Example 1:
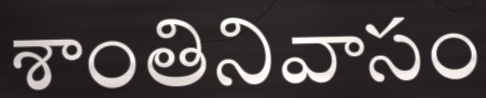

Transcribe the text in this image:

శాంతినివాసం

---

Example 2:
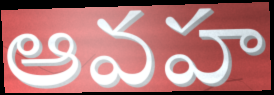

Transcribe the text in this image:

ఆవహ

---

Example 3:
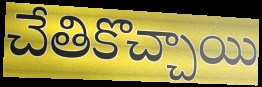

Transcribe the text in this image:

చేతికొచ్చాయి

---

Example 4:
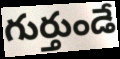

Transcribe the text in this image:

గుర్తుండే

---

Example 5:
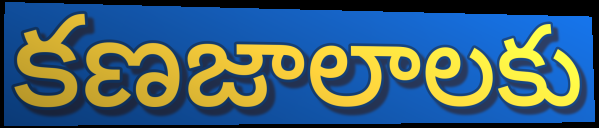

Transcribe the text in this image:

కణజాలాలకు